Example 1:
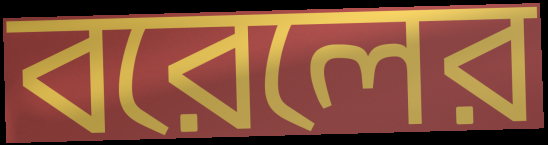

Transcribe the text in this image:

বরেলের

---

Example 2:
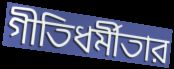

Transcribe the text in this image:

গীতিধর্মীতার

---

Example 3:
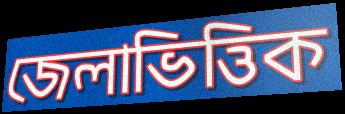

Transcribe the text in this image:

জেলাভিত্তিক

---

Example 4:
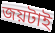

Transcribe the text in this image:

জয়টাই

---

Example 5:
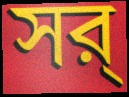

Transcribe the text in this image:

সর্